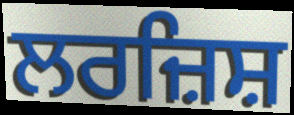
ਲਰਜ਼ਿਸ਼